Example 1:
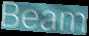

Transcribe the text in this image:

Beam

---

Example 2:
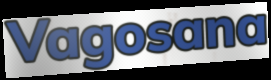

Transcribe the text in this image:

Vagosana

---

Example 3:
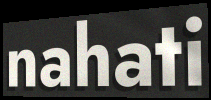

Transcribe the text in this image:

nahati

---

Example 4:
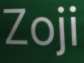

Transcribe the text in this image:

Zoji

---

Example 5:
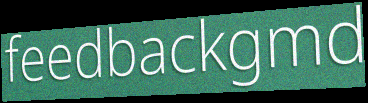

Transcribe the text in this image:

feedbackgmd